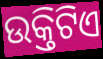
ଉକ୍ତିଟିଏ